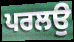
ਪਰਲਉ